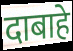
दाबाहे